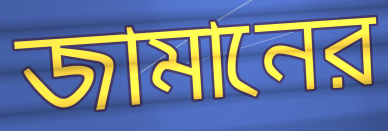
জামানের